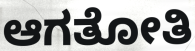
ಆಗತೋತಿ